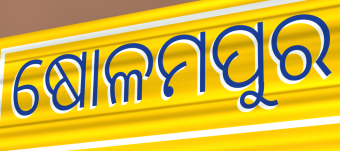
ଷୋଳମପୁର